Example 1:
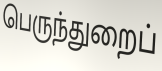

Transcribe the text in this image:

பெருந்துறைப்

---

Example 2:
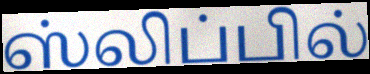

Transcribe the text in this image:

ஸ்லிப்பில்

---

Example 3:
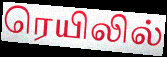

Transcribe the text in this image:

ரெயிலில்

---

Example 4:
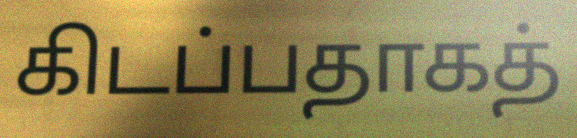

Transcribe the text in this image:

கிடப்பதாகத்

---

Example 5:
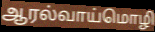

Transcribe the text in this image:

ஆரல்வாய்மொழி